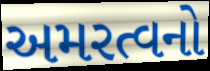
અમરત્વનો